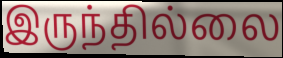
இருந்தில்லை